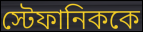
স্টেফানিককে